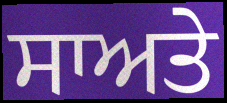
ਸਾਅਤੇ